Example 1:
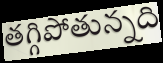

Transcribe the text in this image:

తగ్గిపోతున్నది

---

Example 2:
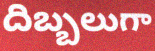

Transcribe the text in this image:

దిబ్బలుగా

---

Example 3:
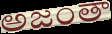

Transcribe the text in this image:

అజంతా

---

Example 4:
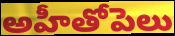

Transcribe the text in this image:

అహీతోపెలు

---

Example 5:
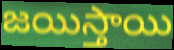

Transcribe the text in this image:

జయిస్తాయి